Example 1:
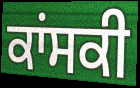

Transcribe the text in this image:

ਕਾਂਸਕੀ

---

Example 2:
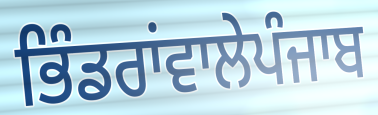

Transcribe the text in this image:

ਭਿੰਡਰਾਂਵਾਲੇਪੰਜਾਬ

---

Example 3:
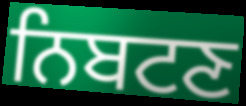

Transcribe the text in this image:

ਨਿਬਟਣ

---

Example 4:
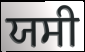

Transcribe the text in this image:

ਯਸੀ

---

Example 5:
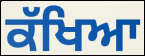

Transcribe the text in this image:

ਕੱਖਿਆ